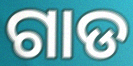
ଗାଡ